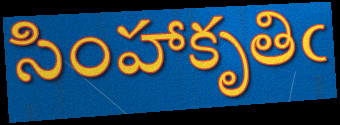
సింహాకృతిఁ